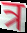
त्र